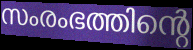
സംരംഭത്തിന്റെ